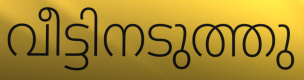
വീട്ടിനടുത്തു